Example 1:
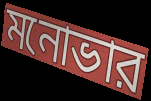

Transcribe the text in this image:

মনোভার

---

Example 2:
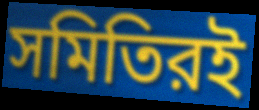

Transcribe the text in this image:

সমিতিরই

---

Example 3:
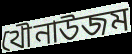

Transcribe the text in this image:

থৌনাউজম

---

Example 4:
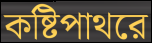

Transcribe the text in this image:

কষ্টিপাথরে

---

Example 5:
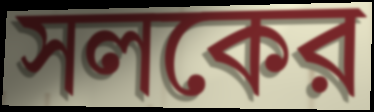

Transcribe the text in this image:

সলকের